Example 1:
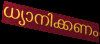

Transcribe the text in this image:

ധ്യാനിക്കണം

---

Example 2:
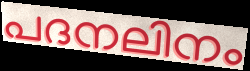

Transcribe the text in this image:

പദനലിനം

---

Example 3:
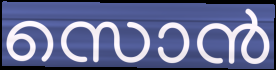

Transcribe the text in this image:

സൊൻ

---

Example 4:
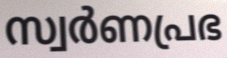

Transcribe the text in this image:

സ്വർണപ്രഭ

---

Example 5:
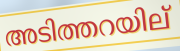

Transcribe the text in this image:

അടിത്തറയില്